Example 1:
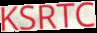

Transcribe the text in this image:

KSRTC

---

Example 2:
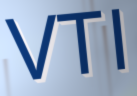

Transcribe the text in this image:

VTI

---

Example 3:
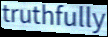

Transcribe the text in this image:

truthfully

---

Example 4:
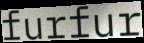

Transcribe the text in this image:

furfur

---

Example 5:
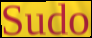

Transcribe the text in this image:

Sudo